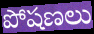
పోషణలు